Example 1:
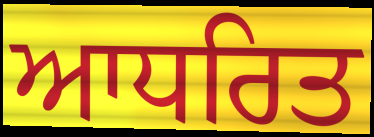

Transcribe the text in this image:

ਆਧਰਿਤ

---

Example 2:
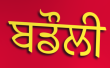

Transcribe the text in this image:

ਬਡੌਲੀ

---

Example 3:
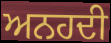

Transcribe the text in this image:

ਅਨਹਦੀ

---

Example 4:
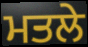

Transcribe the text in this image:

ਮਤਲੇ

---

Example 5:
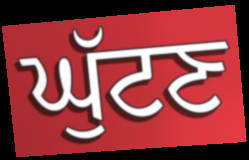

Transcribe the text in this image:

ਘੁੱਟਣ